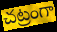
చట్రంగా